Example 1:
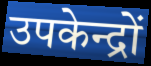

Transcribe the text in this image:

उपकेन्द्रों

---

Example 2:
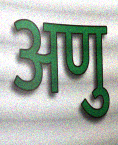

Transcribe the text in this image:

अणु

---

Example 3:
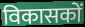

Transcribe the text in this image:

विकासकों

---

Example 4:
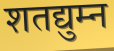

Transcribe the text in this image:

शतद्युम्न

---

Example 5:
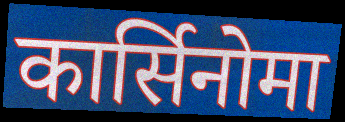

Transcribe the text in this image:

कार्सिनोमा